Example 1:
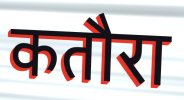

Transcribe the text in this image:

कतौरा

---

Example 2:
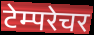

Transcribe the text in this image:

टेम्परेचर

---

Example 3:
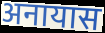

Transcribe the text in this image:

अनायास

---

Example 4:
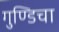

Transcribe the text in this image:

गुण्डिचा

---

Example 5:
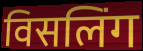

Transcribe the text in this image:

विसलिंग